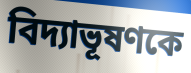
বিদ্যাভূষণকে